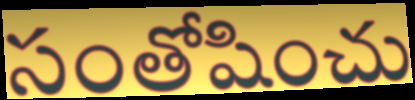
సంతోషించు